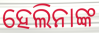
ହେଲିନାଙ୍କ